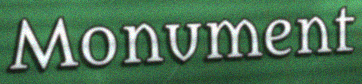
Monument